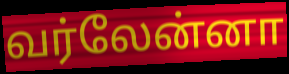
வர்லேன்னா